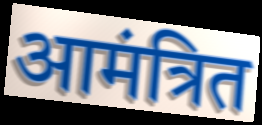
आमंत्रित